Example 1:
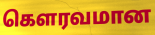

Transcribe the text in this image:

கெளரவமான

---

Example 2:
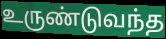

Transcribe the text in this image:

உருண்டுவந்த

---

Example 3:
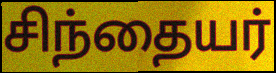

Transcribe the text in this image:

சிந்தையர்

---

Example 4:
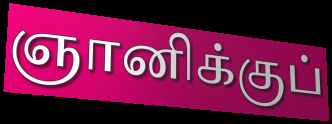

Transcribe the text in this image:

ஞானிக்குப்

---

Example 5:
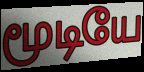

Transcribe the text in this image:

மூடியே